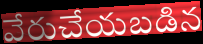
వేరుచేయబడిన